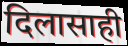
दिलासाही